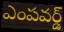
ఎంపవర్డ్